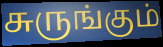
சுருங்கும்